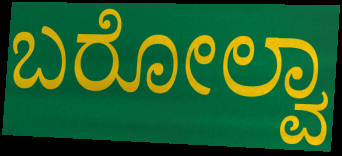
ಬರೋಲ್ವಾ